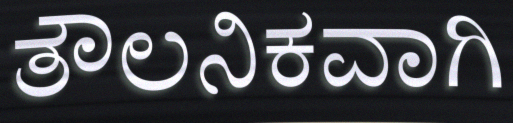
ತೌಲನಿಕವಾಗಿ